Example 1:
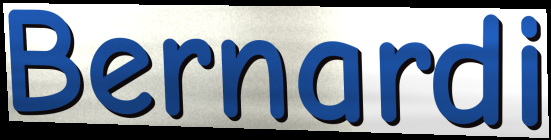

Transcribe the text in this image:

Bernardi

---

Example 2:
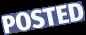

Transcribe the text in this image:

POSTED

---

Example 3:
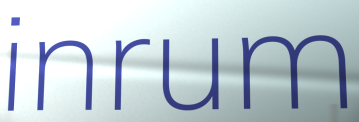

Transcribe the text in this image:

inrum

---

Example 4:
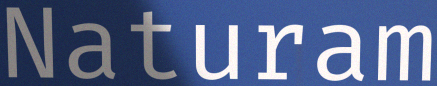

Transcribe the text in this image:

Naturam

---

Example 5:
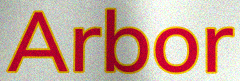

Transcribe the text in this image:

Arbor